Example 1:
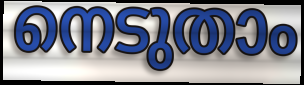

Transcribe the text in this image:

നെടുതാം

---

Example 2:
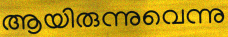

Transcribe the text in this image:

ആയിരുന്നുവെന്നു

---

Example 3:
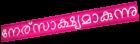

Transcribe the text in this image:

നേര്സാക്ഷ്യമാകുന്നു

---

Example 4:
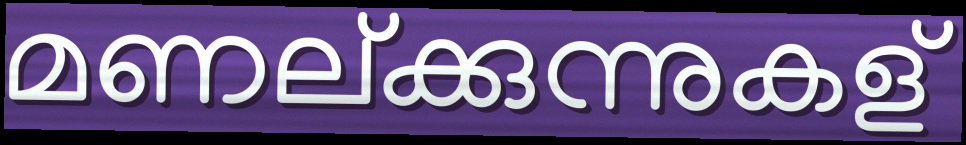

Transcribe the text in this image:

മണല്ക്കുന്നുകള്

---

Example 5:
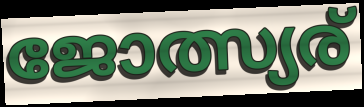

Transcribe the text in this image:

ജോത്സ്യര്